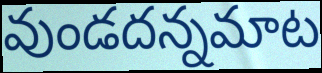
వుండదన్నమాట